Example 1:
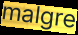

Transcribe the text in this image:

malgre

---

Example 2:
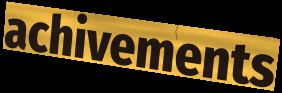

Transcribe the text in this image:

achivements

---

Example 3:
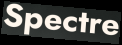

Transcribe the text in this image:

Spectre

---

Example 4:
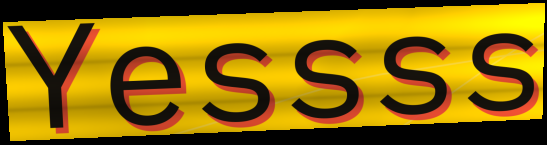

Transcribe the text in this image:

Yessss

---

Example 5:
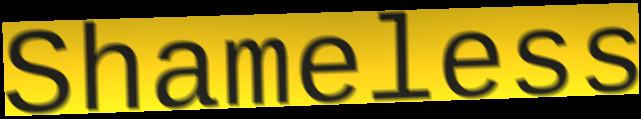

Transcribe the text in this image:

Shameless